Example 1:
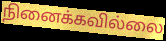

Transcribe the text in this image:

நினைக்கவில்லை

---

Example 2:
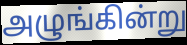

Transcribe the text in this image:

அழுங்கின்று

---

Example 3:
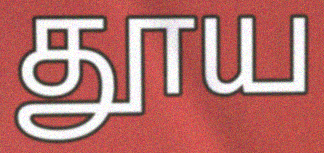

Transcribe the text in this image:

தூய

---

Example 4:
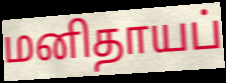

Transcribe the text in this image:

மனிதாயப்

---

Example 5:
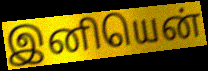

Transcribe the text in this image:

இனியென்